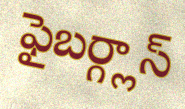
ఫైబర్గ్లాస్